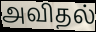
அவிதல்